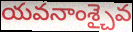
యవనాంశ్చైవ